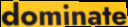
dominate